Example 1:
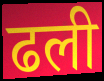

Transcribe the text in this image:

ढली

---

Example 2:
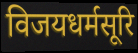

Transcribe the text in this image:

विजयधर्मसूरि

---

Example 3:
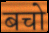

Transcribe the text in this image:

बचो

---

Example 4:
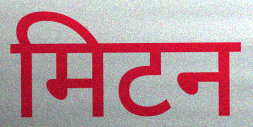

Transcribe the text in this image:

मिटन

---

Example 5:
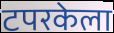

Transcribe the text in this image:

टपरकेला